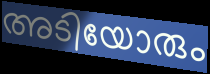
അടിയോരും